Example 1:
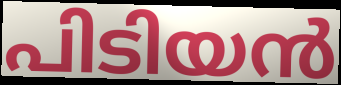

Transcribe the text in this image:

പിടിയൻ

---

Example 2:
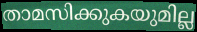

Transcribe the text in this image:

താമസിക്കുകയുമില്ല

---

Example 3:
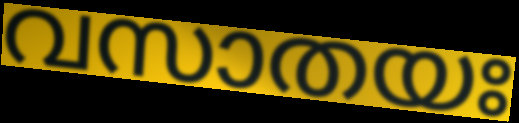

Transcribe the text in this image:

വസാതയഃ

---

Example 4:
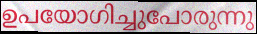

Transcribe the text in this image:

ഉപയോഗിച്ചുപോരുന്നു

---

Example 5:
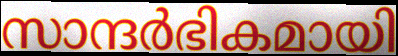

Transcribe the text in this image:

സാന്ദർഭികമായി